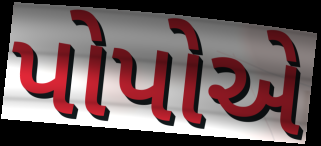
પોપોએ